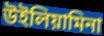
উইলিয়ামিনা